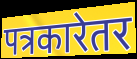
पत्रकारेतर